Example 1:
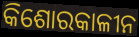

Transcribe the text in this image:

କିଶୋରକାଳୀନ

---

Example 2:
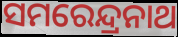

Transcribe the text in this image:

ସମରେନ୍ଦ୍ରନାଥ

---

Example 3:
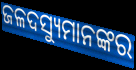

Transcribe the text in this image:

ଜଳଦସ୍ୟୁମାନଙ୍କର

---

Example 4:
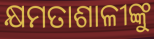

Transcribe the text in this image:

କ୍ଷମତାଶାଳୀଙ୍କୁ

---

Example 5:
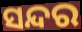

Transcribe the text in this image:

ସନ୍ଦର